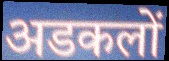
अडकलों